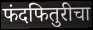
फंदफितुरीचा